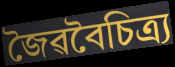
জৈৱবৈচিত্ৰ্য